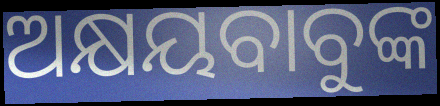
ଅକ୍ଷୟବାବୁଙ୍କ